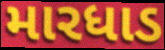
મારધાડ